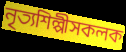
নৃত্যশিল্পীসকলক